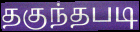
தகுந்தபடி